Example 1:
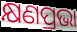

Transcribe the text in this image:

କ୍ଷଣପ୍ରଭା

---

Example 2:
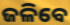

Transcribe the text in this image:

ଜଳିବେ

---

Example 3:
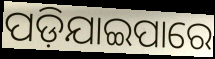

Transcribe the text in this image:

ପଡ଼ିଯାଇପାରେ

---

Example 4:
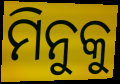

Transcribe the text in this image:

ମିନୁକୁ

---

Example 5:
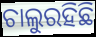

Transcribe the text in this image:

ଚାଲୁରହିଛି